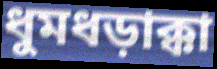
ধুমধড়াক্কা